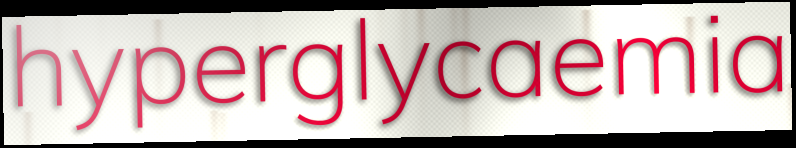
hyperglycaemia